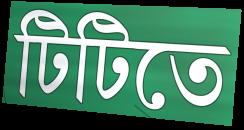
টিটিতে